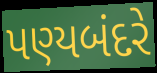
પણ્યબંદરે